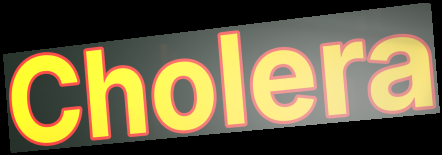
Cholera